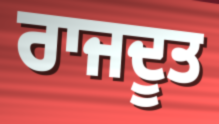
ਰਾਜਦੂਤ